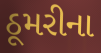
ઠૂમરીના